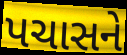
પચાસને